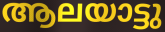
ആലയാട്ടു